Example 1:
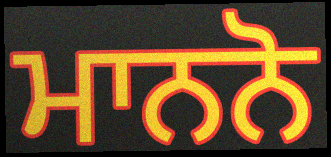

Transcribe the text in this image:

ਮਾਨਨੋ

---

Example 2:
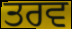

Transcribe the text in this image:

ਤਰਵ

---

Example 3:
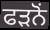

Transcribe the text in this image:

ਫੜਨੋਂ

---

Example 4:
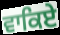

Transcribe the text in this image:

ਵਾਕਿਏ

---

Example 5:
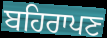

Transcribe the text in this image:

ਬਹਿਰਾਪਣ